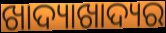
ଖାଦ୍ୟାଖାଦ୍ୟର